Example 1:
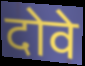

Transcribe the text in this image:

दोवे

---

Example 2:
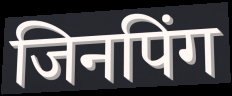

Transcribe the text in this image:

जिनपिंग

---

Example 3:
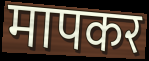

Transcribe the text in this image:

मापकर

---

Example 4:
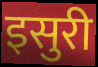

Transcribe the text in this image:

इसुरी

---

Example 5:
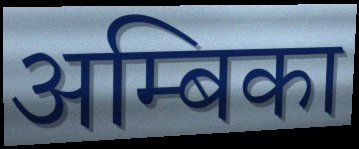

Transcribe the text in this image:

अम्बिका